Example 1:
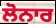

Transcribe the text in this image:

ਲੋਨਾਰ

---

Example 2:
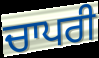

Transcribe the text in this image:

ਚਾਪਰੀ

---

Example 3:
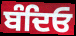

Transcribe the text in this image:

ਬੰਦਿਓ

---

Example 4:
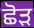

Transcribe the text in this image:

ਛੋੜ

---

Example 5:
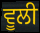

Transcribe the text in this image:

ਵੂਲੀ